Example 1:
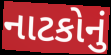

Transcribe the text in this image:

નાટકોનું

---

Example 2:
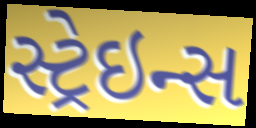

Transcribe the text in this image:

સ્ટ્રેઇન્સ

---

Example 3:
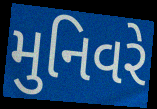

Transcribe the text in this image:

મુનિવરે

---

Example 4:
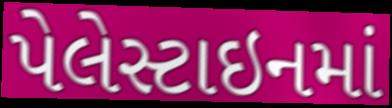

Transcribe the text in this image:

પેલેસ્ટાઇનમાં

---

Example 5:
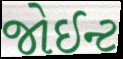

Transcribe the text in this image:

જોઈન્ટ